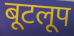
बूटलूप